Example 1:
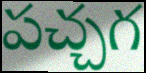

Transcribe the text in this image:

పచ్చగ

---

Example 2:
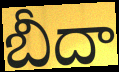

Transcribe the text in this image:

బీదా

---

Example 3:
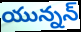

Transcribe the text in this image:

యున్నన్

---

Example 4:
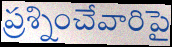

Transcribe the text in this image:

ప్రశ్నించేవారిపై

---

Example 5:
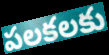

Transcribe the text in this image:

పలకలకు